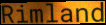
Rimland